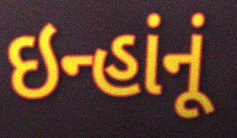
ઇન્હાંનૂં